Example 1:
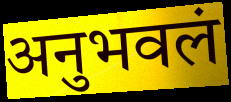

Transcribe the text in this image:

अनुभवलं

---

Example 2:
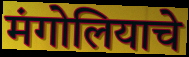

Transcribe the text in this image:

मंगोलियाचे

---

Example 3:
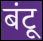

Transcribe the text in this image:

बंटू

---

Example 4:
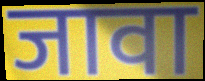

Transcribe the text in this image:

जावा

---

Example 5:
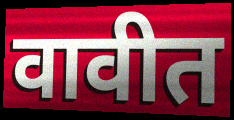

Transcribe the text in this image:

वावीत